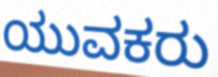
ಯುವಕರು